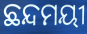
ଛନ୍ଦମୟୀ